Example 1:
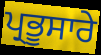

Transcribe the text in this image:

ਪ੍ਰਭੂਸਾਰੇ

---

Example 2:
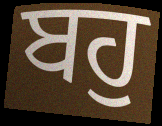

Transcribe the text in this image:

ਬਹੁ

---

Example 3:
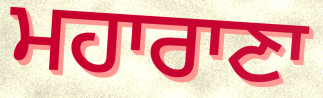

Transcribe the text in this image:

ਮਹਾਰਾਣਾ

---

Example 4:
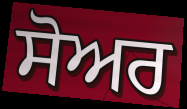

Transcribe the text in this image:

ਸੋਅਰ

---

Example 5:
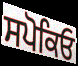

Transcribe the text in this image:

ਸਪੋਕਿਓ